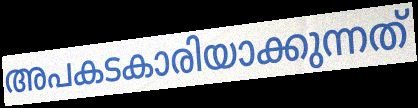
അപകടകാരിയാക്കുന്നത്